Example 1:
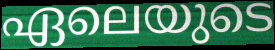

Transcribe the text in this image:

ഏലെയുടെ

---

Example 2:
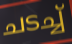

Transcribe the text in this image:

ചടച്ച്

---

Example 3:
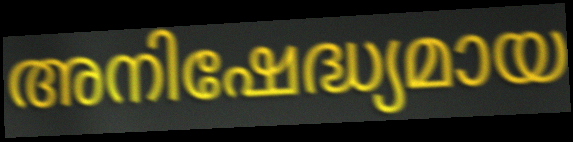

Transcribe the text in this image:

അനിഷേദ്ധ്യമായ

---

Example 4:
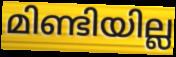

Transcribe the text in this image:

മിണ്ടിയില്ല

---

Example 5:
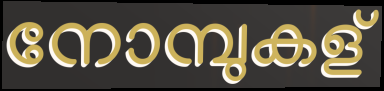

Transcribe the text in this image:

നോമ്പുകള്